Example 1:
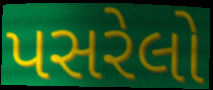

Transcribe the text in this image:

પસરેલો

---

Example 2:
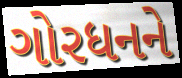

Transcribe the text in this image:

ગોરધનને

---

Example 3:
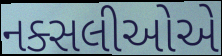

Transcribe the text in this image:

નક્સલીઓએ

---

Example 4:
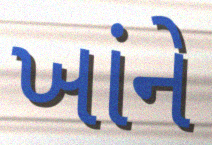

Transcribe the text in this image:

ખાંને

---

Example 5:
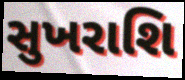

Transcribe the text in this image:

સુખરાશિ